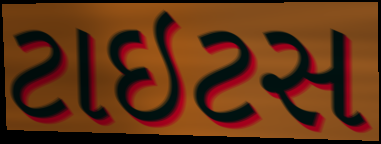
ટાઇટસ